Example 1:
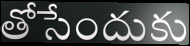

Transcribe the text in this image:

తోసేందుకు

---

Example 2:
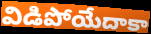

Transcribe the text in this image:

విడిపోయేదాకా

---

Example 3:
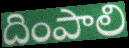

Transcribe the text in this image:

దింపాలి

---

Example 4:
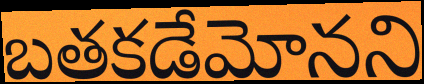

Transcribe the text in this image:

బతకడేమోనని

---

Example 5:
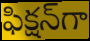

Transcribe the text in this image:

ఫిక్షన్‌గా